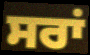
ਸਰਾਂ